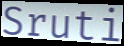
Sruti